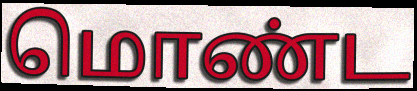
மொண்ட